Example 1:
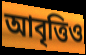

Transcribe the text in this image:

আবৃত্তিও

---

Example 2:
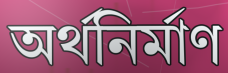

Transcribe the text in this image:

অর্থনির্মাণ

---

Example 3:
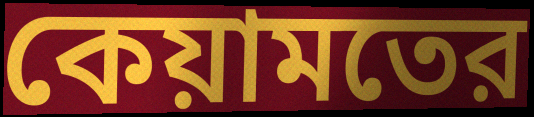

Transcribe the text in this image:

কেয়ামতের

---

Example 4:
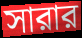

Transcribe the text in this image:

সারার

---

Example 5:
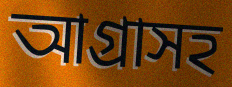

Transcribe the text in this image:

আগ্রাসহ